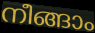
നീങ്ങാം